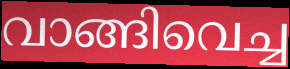
വാങ്ങിവെച്ച